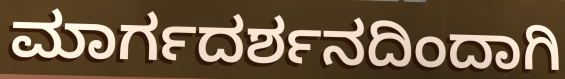
ಮಾರ್ಗದರ್ಶನದಿಂದಾಗಿ